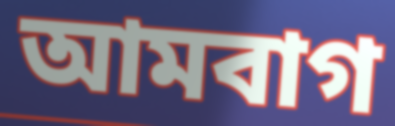
আমবাগ